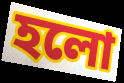
হলো